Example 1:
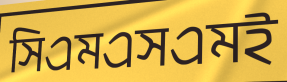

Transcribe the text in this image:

সিএমএসএমই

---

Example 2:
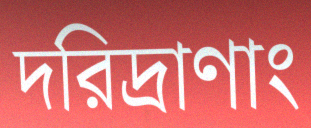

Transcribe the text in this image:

দরিদ্রাণাং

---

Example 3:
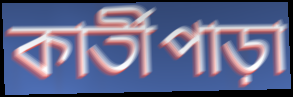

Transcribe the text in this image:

কার্তীপাড়া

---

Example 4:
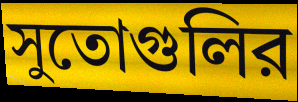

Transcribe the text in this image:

সুতোগুলির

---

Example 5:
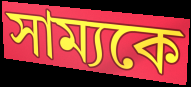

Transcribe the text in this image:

সাম্যকে